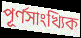
পূর্ণসাংখ্যিক